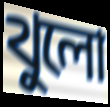
থুলো